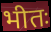
भीतः